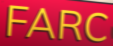
FARC